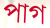
পাগ